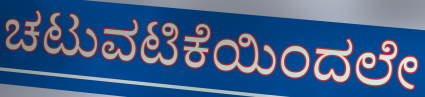
ಚಟುವಟಿಕೆಯಿಂದಲೇ